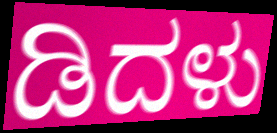
ಡಿದಳು